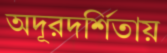
অদূরদর্শিতায়